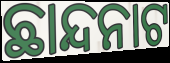
ଛାନ୍ଦନାଟ